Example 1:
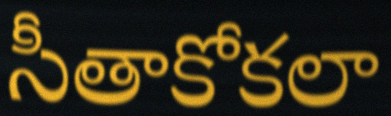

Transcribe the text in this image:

సీతాకోకలా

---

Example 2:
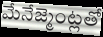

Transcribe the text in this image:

మేనేజ్మెంట్లతో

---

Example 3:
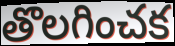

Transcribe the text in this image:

తొలగించక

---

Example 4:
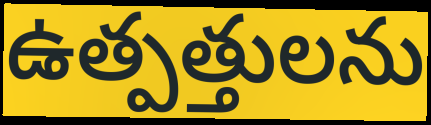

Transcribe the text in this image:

ఉత్పత్తులను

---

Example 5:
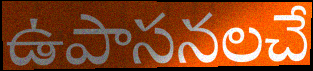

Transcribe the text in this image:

ఉపాసనలచే